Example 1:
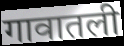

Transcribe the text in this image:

गावातली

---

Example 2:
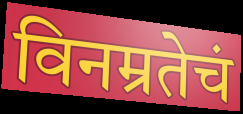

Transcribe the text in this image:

विनम्रतेचं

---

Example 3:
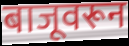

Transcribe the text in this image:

बाजूवरून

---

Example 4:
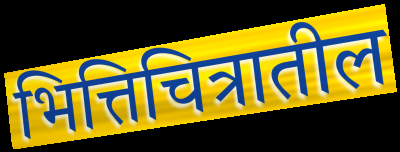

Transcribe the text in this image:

भित्तिचित्रातील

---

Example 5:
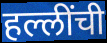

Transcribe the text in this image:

हल्लींची